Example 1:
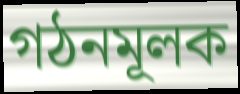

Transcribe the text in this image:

গঠনমূলক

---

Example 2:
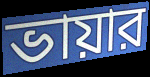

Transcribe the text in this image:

ভায়ার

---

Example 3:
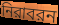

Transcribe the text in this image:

নিরাবরন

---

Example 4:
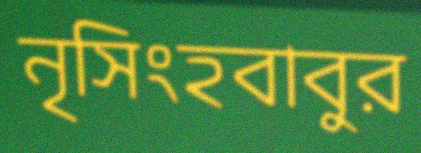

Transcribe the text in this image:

নৃসিংহবাবুর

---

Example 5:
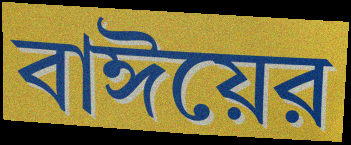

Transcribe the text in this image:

বাঈয়ের